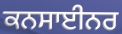
ਕਨਸਾਈਨਰ